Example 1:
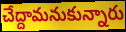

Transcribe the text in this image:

చేద్దామనుకున్నారు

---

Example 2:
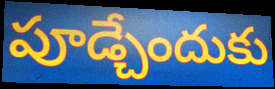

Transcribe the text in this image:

పూడ్చేందుకు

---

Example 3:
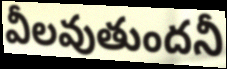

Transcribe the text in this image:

వీలవుతుందనీ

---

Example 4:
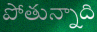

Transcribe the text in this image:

పోతున్నాది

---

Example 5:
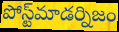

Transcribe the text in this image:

పోస్ట్‌మాడర్నిజం